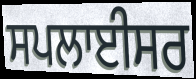
ਸਪਲਾਈਸਰ